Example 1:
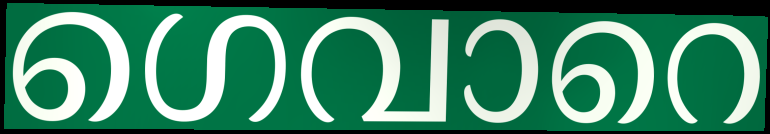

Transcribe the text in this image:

ഗെവാറെ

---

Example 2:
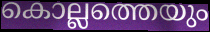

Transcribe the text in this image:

കൊല്ലത്തെയും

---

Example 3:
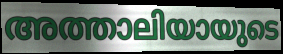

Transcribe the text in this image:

അത്താലിയായുടെ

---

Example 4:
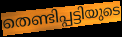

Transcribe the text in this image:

തെണ്ടിപ്പട്ടിയുടെ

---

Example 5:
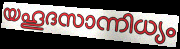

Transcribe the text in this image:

യഹൂദസാന്നിധ്യം